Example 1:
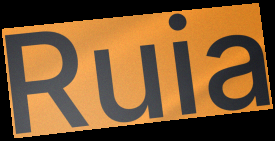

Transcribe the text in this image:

Ruia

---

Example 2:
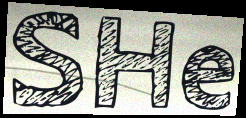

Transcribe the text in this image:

SHe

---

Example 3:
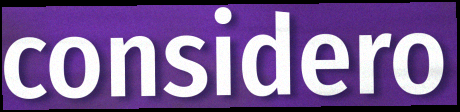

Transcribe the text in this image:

considero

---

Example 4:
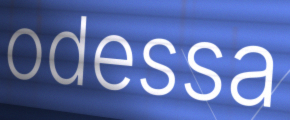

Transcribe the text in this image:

odessa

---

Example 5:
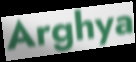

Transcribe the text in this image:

Arghya